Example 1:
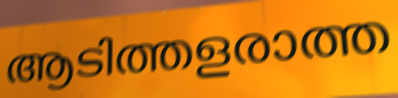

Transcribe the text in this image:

ആടിത്തളരാത്ത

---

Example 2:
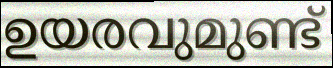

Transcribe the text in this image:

ഉയരവുമുണ്ട്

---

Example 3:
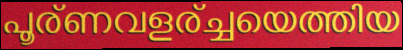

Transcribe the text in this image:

പൂര്ണവളര്ച്ചയെത്തിയ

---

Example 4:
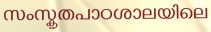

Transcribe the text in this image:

സംസ്കൃതപാഠശാലയിലെ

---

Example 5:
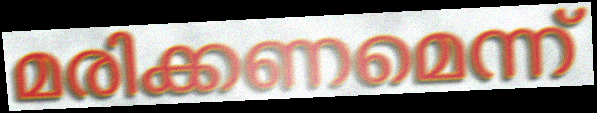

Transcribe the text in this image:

മരിക്കണമെന്ന്